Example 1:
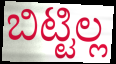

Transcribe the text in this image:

ಬಿಟ್ಟಿಲ್ಲ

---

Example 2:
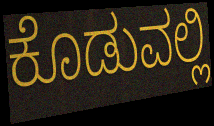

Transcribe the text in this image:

ಕೊಡುವಲ್ಲಿ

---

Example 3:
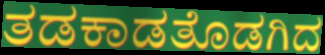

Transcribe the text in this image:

ತಡಕಾಡತೊಡಗಿದ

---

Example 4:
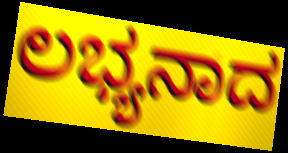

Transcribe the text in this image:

ಲಭ್ಯನಾದ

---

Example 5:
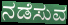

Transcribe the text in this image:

ನಡೆಸುವ